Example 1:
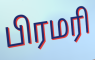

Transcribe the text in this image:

பிரமரி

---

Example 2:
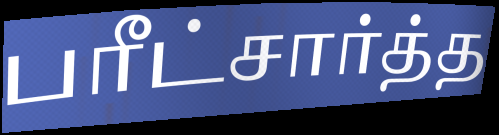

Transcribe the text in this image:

பரீட்சார்த்த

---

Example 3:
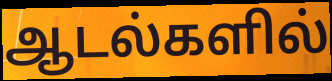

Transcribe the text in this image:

ஆடல்களில்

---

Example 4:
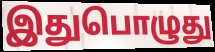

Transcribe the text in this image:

இதுபொழுது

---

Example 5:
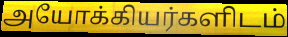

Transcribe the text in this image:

அயோக்கியர்களிடம்